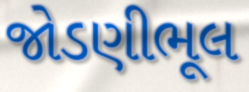
જોડણીભૂલ